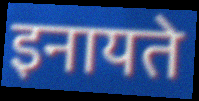
इनायते